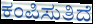
ಕಂಪಿಸುತಿದೆ